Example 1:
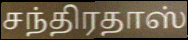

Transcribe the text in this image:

சந்திரதாஸ்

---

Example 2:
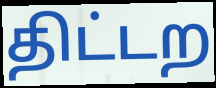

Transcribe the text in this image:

திட்டற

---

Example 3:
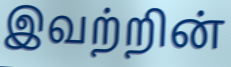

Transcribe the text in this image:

இவற்றின்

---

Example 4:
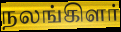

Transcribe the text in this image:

நலங்கிளர்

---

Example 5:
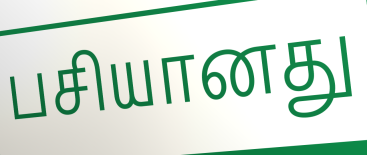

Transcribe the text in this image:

பசியானது